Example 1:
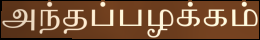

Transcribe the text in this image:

அந்தப்பழக்கம்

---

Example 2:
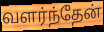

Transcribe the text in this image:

வளர்ந்தேன்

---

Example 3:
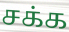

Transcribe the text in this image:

சக்க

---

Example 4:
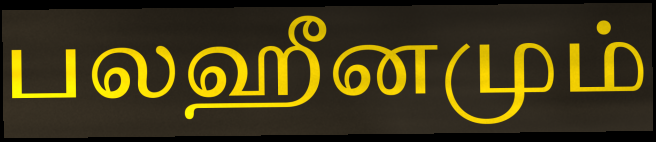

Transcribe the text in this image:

பலஹீனமும்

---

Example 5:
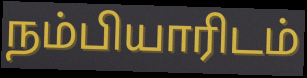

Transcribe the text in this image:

நம்பியாரிடம்